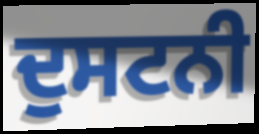
ਦੁਸਟਨੀ